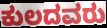
ಕುಲದವರು